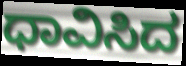
ಧಾವಿಸಿದ